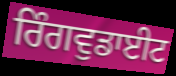
ਰਿੰਗਵੁਡਾਈਟ